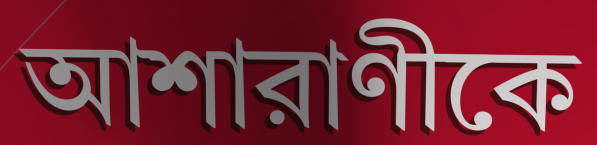
আশারাণীকে